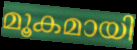
മൂകമായി